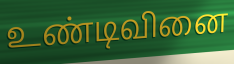
உண்டிவினை